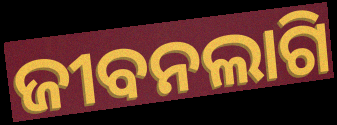
ଜୀବନଲାଗି